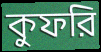
কুফরি